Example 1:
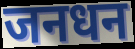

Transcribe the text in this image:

जनधन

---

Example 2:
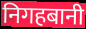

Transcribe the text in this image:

निगहबानी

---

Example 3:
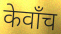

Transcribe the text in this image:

केवाँच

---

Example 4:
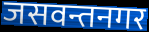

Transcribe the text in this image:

जसवन्तनगर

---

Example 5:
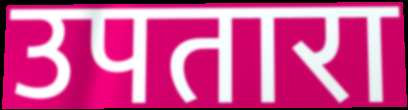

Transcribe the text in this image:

उपतारा